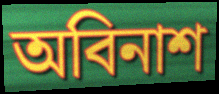
অবিনাশ